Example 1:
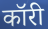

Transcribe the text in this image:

कॉरी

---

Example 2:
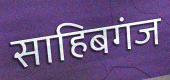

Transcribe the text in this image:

साहिबगंज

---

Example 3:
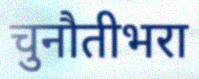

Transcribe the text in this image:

चुनौतीभरा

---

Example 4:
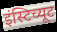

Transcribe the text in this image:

इंस्टिच्यूट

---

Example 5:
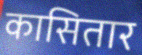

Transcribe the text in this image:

कासितार